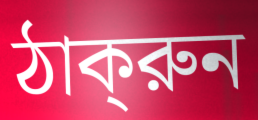
ঠাক্‌রুন